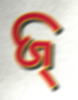
ଜ୍